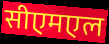
सीएमएल